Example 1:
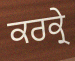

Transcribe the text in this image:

ਕਰਕ੍ਰੇ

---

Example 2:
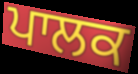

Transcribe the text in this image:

ਪਾਲਕ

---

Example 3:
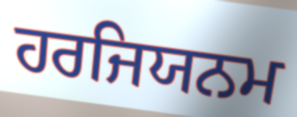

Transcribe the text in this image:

ਹਰਜਿਯਨਮ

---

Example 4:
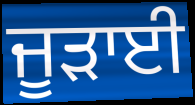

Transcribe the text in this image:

ਜੂੜਾਈ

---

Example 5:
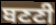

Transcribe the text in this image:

ਬਣਣੀ